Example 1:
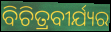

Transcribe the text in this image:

ବିଚିତ୍ରବୀର୍ଯ୍ୟର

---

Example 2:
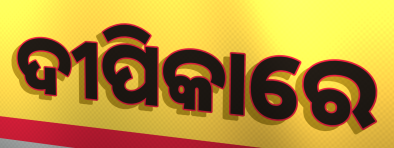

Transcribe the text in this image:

ଦୀପିକାରେ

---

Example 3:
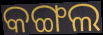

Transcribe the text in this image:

କଙ୍ଗଲ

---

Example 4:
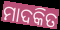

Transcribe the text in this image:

ମାଦକିତ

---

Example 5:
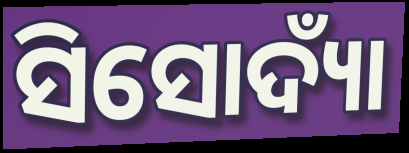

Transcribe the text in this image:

ସିସୋଦ୍ୟାଁ